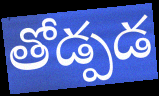
తోడ్పడ